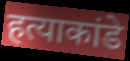
हत्याकांडे